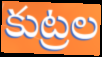
కుట్రల